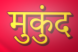
मुकुंद